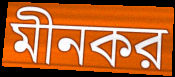
মীনকর